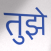
तुझे